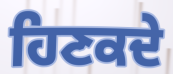
ਹਿਣਕਦੇ